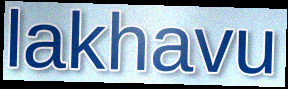
lakhavu